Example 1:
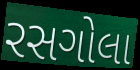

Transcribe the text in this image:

રસગોલા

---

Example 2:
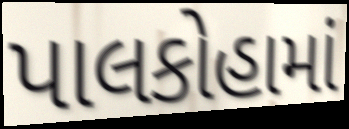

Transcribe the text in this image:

પાલકોહામાં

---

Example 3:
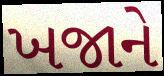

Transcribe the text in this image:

ખજાને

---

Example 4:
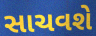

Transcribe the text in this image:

સાચવશે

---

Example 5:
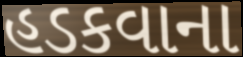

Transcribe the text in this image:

હડકવાના